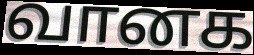
வானக